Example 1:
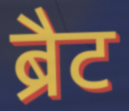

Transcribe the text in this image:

ब्रैट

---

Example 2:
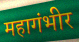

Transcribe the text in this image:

महागंभीर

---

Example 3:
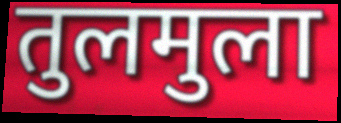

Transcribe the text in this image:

तुलमुला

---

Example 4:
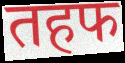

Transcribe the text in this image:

तहफ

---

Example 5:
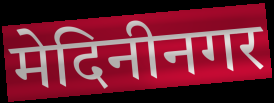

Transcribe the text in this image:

मेदिनीनगर